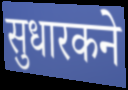
सुधारकने